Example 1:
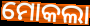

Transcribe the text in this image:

ମୋକଲା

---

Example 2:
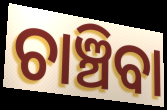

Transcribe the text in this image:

ଚାଞ୍ଚିବା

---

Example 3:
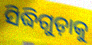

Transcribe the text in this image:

ସିଦ୍ଧିଗୁଡ଼ାକୁ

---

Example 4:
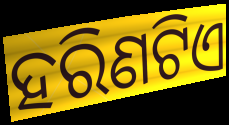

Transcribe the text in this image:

ହରିଣଟିଏ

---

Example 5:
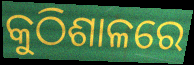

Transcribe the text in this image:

କୁଠିଶାଳରେ